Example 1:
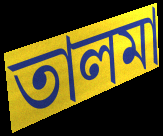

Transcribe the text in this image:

তালমা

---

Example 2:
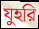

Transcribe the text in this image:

যুহরি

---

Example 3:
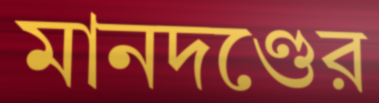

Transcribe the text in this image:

মানদণ্ডের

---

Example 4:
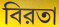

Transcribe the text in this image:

বিরতা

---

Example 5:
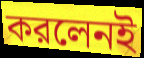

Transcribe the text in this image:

করলেনই